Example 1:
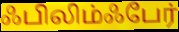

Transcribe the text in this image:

ஃபிலிம்ஃபேர்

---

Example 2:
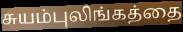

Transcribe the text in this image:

சுயம்புலிங்கத்தை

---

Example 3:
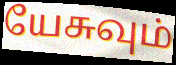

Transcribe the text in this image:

யேசுவும்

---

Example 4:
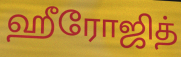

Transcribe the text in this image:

ஹீரோஜித்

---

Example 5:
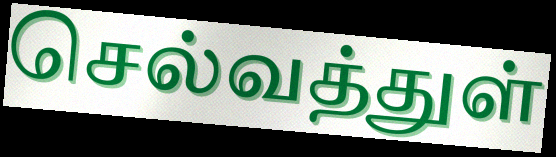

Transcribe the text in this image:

செல்வத்துள்